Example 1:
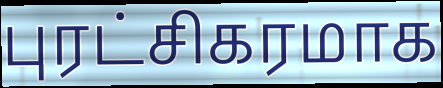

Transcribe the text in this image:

புரட்சிகரமாக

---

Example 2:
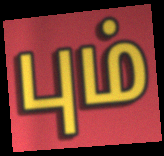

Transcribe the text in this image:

பும்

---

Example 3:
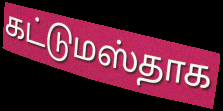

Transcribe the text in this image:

கட்டுமஸ்தாக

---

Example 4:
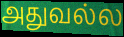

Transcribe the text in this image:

அதுவல்ல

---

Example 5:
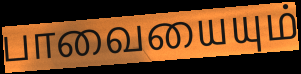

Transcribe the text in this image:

பாவையையும்